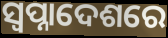
ସ୍ଵପ୍ନାଦେଶରେ